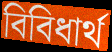
বিবিধার্থ